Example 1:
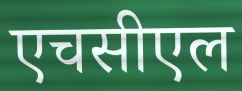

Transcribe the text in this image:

एचसीएल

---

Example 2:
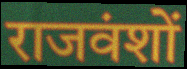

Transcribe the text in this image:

राजवंशों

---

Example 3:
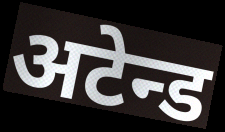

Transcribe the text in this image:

अटेन्ड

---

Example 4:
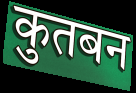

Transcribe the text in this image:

कुतबन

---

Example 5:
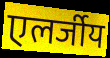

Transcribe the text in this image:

एलर्जीय